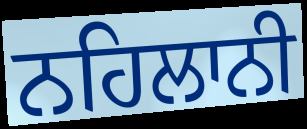
ਨਹਿਲਾਨੀ